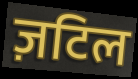
ज़टिल